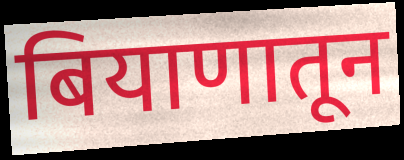
बियाणातून